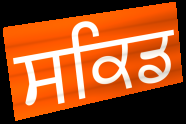
ਸਕਿਡ